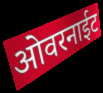
ओवरनाईट